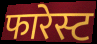
फारेस्‍ट